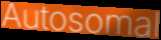
Autosomal